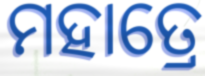
ମହାତ୍ରେ